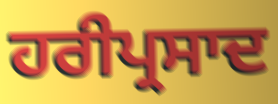
ਹਰੀਪ੍ਰਸਾਦ